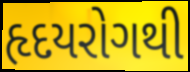
હૃદયરોગથી